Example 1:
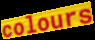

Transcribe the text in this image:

colours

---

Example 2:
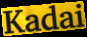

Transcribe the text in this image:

Kadai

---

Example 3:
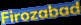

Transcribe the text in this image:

Firozabad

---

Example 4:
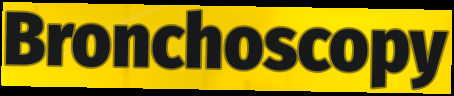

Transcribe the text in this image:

Bronchoscopy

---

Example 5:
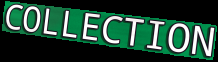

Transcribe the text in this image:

COLLECTION